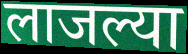
लाजल्या